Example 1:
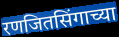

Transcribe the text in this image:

रणजितसिंगाच्या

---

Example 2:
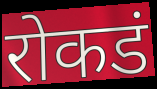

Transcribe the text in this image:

रोकडं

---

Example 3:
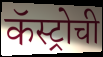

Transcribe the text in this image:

कॅस्ट्रोची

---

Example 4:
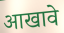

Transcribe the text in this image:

आखावे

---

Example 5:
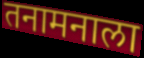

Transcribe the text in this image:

तनामनाला